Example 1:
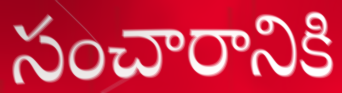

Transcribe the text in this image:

సంచారానికి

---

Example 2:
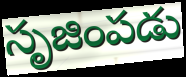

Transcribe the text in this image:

సృజింపడు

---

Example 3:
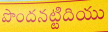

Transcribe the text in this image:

పొందనట్టిదియు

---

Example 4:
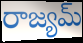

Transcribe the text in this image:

రాజ్యమ్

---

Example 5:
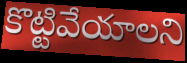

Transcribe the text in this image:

కొట్టివేయాలని